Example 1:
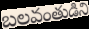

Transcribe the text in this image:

బలవంతుడిని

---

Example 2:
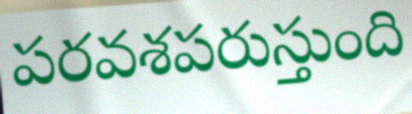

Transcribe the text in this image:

పరవశపరుస్తుంది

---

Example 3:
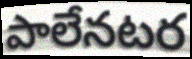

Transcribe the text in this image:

పాలేనటర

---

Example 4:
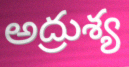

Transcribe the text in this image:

అద్రుశ్య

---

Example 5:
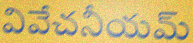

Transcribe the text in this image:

వివేచనీయమ్